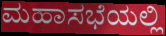
ಮಹಾಸಭೆಯಲ್ಲಿ